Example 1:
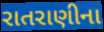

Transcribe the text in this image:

રાતરાણીના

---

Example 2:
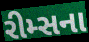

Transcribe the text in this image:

રીમ્સના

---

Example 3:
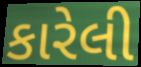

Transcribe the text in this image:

કારેલી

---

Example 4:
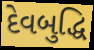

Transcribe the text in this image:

દેવબુદ્ધિ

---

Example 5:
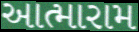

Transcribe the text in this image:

આત્મારામ